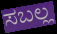
ಸಬಲ್ಲ